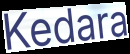
Kedara